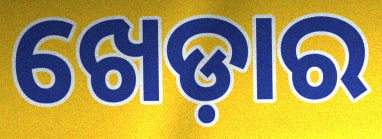
ଖେଡ଼ାର